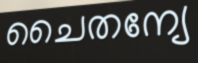
ചൈതന്യേ